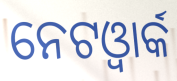
ନେଟଓ୍ବାର୍କ